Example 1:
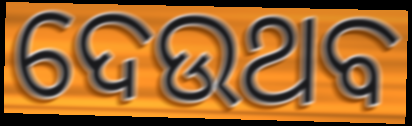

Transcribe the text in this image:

ଦେଉଥବ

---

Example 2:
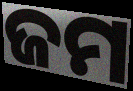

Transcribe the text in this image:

ଜମ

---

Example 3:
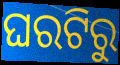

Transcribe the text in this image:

ଘରଟିରୁ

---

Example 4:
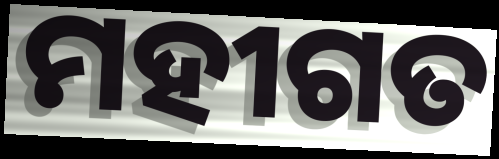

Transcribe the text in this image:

ମହୀଗତ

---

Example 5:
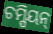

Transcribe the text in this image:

ଚମ୍ପିୟନ୍